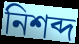
নিশব্দ